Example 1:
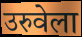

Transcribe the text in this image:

उरुवेला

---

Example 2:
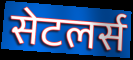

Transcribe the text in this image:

सेटलर्स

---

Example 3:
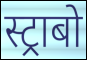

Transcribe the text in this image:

स्ट्राबो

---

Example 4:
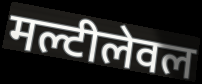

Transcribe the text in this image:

मल्टीलेवल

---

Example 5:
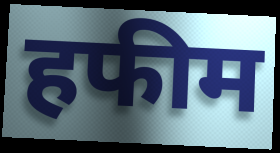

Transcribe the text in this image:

हफीम